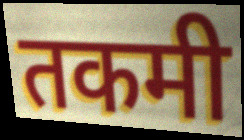
तकमी